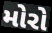
મોરો